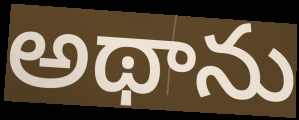
అథాను